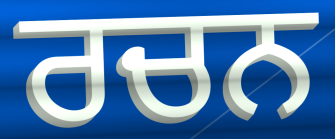
ਰਚਨ